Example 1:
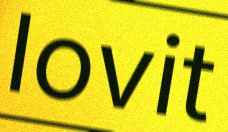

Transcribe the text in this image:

lovit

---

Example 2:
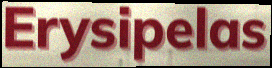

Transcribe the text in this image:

Erysipelas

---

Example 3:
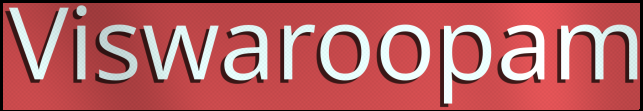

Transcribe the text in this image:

Viswaroopam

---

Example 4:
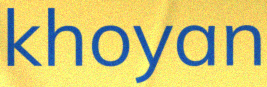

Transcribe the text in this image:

khoyan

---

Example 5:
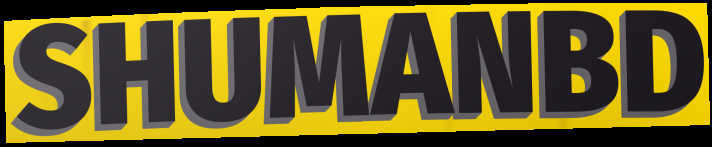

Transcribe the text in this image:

SHUMANBD